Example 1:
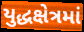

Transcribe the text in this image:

યુદ્ધક્ષેત્રમાં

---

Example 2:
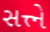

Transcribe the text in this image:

સત્ત્ને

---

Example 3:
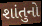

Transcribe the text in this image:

શાંતુનો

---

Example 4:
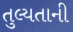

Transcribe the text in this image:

તુલ્યતાની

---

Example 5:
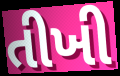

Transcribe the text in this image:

તીખી